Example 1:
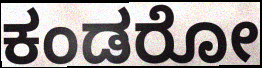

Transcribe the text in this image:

ಕಂಡರೋ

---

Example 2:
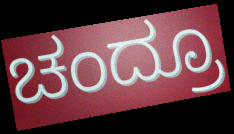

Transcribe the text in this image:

ಚಂದ್ರೂ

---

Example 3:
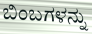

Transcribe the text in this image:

ಬಿಂಬಗಳನ್ನು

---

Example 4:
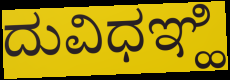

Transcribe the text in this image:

ದುವಿಧಞ್ಹಿ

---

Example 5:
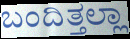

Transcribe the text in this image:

ಬಂದಿತ್ತಲ್ಲಾ